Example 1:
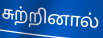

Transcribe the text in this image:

சுற்றினால்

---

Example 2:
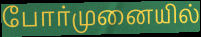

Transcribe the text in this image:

போர்முனையில்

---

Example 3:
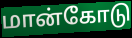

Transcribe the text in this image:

மான்கோடு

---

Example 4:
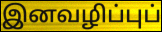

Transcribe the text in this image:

இனவழிப்புப்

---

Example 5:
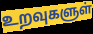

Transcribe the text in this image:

உறவுகளுள்